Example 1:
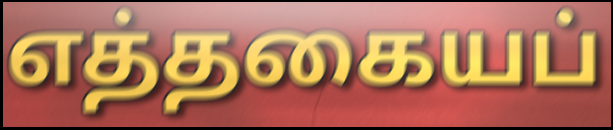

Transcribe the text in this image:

எத்தகையப்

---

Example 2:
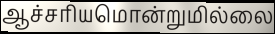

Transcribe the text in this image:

ஆச்சரியமொன்றுமில்லை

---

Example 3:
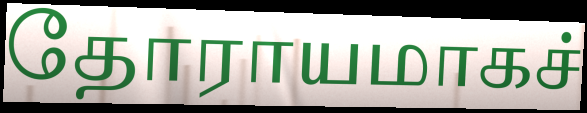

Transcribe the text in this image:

தோராயமாகச்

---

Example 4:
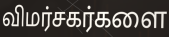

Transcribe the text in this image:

விமர்சகர்களை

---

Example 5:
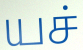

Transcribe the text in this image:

யச்